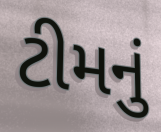
ટીમનું